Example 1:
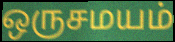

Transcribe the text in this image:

ஒருசமயம்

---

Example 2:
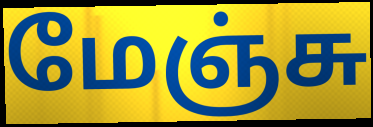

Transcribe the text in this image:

மேஞ்சு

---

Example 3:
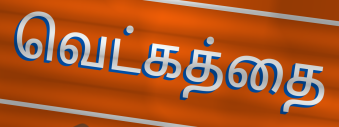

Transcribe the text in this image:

வெட்கத்தை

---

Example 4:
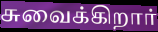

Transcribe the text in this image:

சுவைக்கிறார்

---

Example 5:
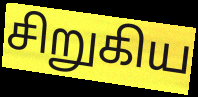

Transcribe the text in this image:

சிறுகிய